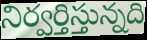
నిర్వర్తిస్తున్నది